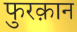
फुरक़ान